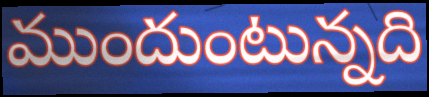
ముందుంటున్నది